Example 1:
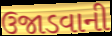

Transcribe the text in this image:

ઉજાડવાની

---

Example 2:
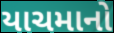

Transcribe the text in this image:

યાચમાનો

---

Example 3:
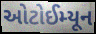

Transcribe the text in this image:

ઓટોઈમ્યૂન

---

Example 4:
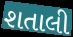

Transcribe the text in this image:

શતાલી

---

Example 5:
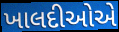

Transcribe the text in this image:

ખાલદીઓએ